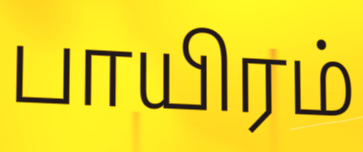
பாயிரம்